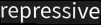
repressive